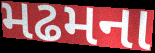
મઢમના